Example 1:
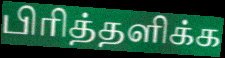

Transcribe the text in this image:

பிரித்தளிக்க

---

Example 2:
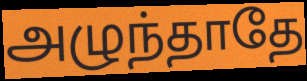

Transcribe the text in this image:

அழுந்தாதே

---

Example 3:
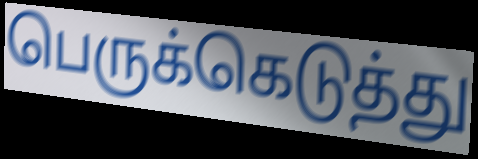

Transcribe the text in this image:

பெருக்கெடுத்து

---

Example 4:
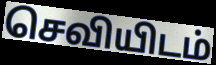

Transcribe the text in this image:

செவியிடம்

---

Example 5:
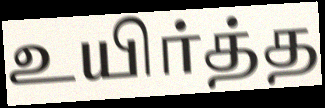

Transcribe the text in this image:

உயிர்த்த